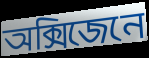
অক্সিজেনে